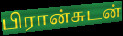
பிரான்சுடன்